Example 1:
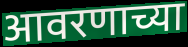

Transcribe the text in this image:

आवरणाच्या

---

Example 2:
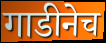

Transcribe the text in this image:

गाडीनेच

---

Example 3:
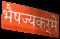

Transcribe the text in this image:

भैषज्यकर्मे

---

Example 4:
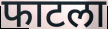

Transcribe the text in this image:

फाटला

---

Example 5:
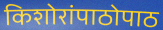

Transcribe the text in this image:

किशोरांपाठोपाठ